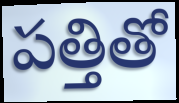
పత్తితో